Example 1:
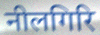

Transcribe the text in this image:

नीलगिरि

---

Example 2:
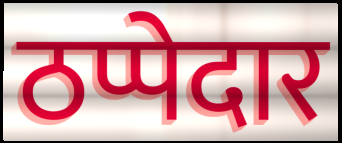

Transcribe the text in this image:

ठप्पेदार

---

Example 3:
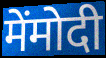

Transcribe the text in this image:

मेंमोदी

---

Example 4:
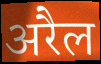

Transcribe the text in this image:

अरैल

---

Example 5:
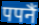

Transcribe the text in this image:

पपनैं